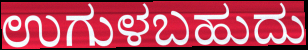
ಉಗುಳಬಹುದು